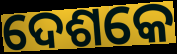
ଦେଶକେ